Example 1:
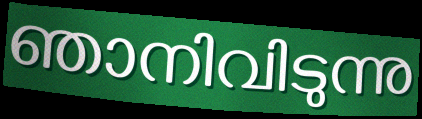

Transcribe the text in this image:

ഞാനിവിടുന്നു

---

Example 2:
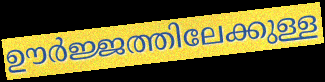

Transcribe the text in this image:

ഊർജ്ജത്തിലേക്കുള്ള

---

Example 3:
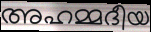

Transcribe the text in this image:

അഹമ്മദീയ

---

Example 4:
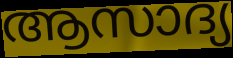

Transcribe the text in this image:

ആസാദ്യ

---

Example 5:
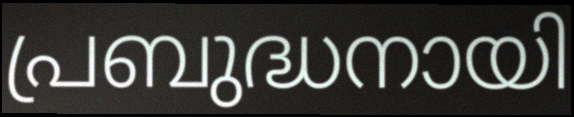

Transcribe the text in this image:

പ്രബുദ്ധനായി